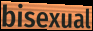
bisexual